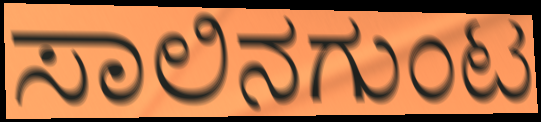
ಸಾಲಿನಗುಂಟ